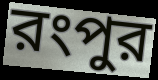
রংপুর